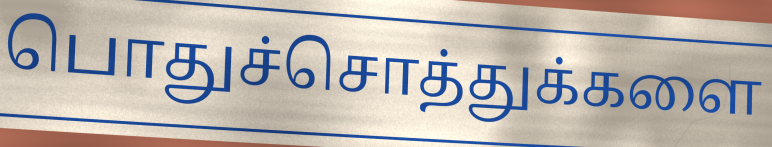
பொதுச்சொத்துக்களை